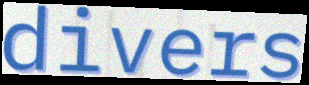
divers